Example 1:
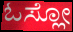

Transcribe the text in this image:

ಓಸ್ಲೋ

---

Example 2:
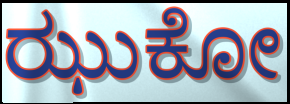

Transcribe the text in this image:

ಝುಕೋ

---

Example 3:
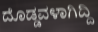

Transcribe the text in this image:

ದೊಡ್ಡವಳಾಗಿದ್ದಿ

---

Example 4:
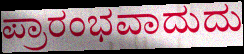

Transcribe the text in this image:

ಪ್ರಾರಂಭವಾದುದು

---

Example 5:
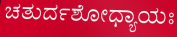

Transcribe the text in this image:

ಚತುರ್ದಶೋಧ್ಯಾಯಃ